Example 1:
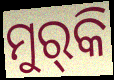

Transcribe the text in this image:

ମୁର୍‌କି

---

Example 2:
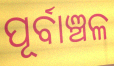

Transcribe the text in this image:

ପୂର୍ବାଞ୍ଚଳ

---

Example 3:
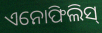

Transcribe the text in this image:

ଏନୋଫିଲିସ୍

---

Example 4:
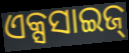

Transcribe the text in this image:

ଏକ୍ସସାଇଜ୍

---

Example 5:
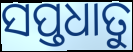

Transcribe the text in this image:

ସପ୍ତଧାତୁ